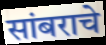
सांबराचे